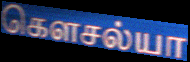
கௌசல்யா